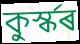
কুৰ্স্কৰ